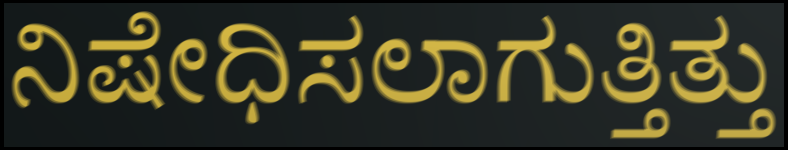
ನಿಷೇಧಿಸಲಾಗುತ್ತಿತ್ತು